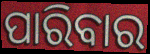
ପାରିବାର